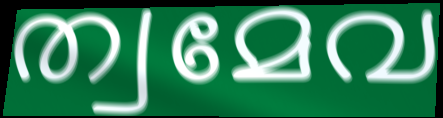
ത്വമേവ